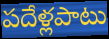
పదేళ్లపాటు